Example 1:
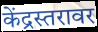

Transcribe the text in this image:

केंद्रस्तरावर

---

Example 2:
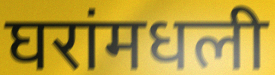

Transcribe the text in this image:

घरांमधली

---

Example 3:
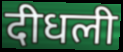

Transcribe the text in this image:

दीधली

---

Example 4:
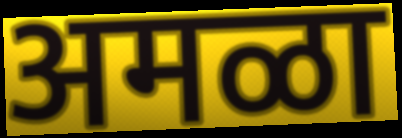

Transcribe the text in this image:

अमळा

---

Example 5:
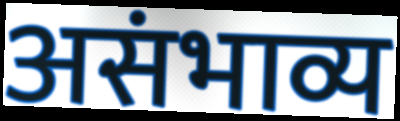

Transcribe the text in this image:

असंभाव्य